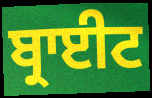
ਬ੍ਰਾਈਟ